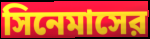
সিনেমাসের